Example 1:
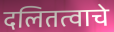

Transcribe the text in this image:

दलितत्वाचे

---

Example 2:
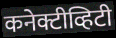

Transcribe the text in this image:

कनेक्टीव्हिटी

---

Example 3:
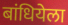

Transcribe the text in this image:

बांधियेला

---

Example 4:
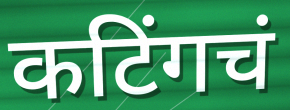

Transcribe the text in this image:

कटिंगचं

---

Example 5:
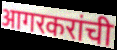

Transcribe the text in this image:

आगरकरांची